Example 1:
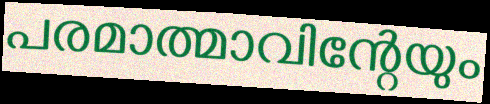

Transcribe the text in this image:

പരമാത്മാവിന്റേയും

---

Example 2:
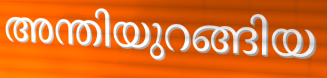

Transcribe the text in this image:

അന്തിയുറങ്ങിയ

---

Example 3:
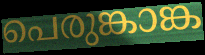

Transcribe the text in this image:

പെരുങ്കാങ്ക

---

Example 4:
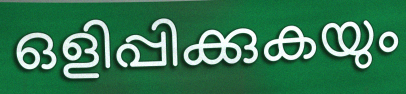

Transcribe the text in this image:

ഒളിപ്പിക്കുകയും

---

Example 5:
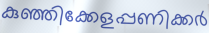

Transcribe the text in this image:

കുഞ്ഞിക്കേളപ്പണിക്കർ